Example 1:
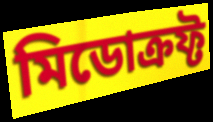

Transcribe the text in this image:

মিডোক্রফ্ট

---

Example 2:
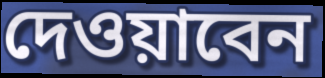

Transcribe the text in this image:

দেওয়াবেন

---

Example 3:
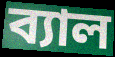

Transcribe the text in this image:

ব্যাল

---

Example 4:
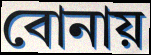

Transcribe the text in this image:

বোনায়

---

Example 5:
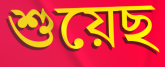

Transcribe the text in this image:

শুয়েছ